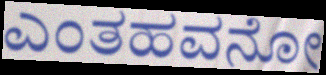
ಎಂತಹವನೋ